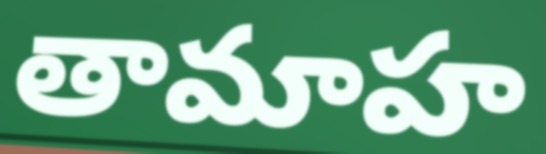
తామాహ